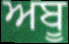
ਅਬੂ